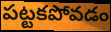
పట్టకపోవడం